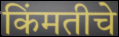
किंमतीचे